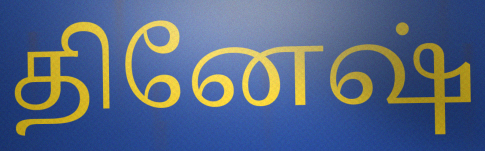
தினேஷ்